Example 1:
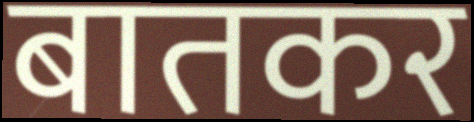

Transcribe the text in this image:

बातकर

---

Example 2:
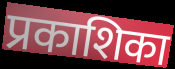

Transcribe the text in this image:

प्रकाशिका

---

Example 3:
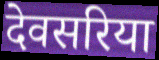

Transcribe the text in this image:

देवसरिया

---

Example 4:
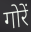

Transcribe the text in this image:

गोरें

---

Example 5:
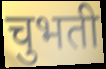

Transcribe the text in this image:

चुभती